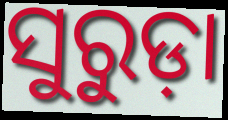
ସୁରୁଡ଼ା